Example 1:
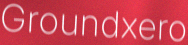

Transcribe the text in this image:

Groundxero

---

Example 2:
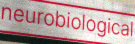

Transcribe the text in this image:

neurobiological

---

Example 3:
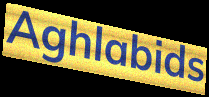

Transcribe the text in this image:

Aghlabids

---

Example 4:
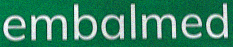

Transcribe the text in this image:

embalmed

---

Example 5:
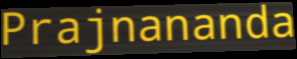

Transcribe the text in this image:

Prajnananda